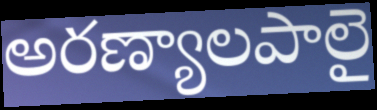
అరణ్యాలపాలై